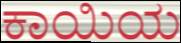
ಕಾಯಿಯ